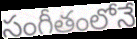
సంగీతంలోనే